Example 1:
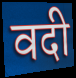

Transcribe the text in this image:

वदी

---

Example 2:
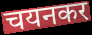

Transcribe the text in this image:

चयनकर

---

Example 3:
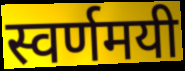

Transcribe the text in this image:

स्वर्णमयी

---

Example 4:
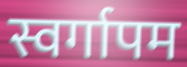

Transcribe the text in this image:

स्वर्गापम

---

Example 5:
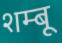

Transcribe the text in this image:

शम्बू